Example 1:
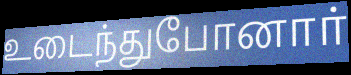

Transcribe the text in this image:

உடைந்துபோனார்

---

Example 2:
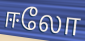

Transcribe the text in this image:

ஈலோ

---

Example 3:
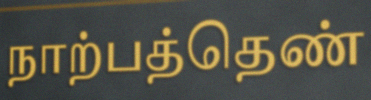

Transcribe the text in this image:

நாற்பத்தெண்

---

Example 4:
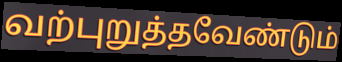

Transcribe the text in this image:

வற்புறுத்தவேண்டும்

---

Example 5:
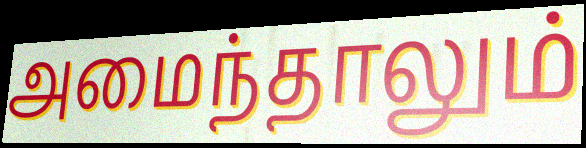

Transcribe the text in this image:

அமைந்தாலும்